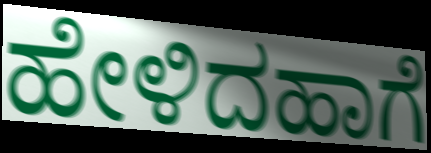
ಹೇಳಿದಹಾಗೆ